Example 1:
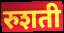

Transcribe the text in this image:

रुशती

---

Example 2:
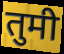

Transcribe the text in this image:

तुमी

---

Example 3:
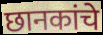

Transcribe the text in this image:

छानकांचे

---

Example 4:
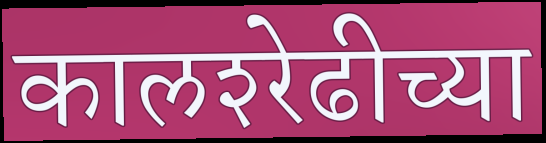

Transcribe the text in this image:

कालश्रेढीच्या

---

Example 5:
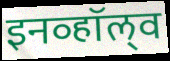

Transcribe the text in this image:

इनव्हॉल्व